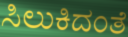
ಸಿಲುಕಿದಂತೆ